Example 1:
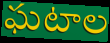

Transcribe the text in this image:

ఘటాల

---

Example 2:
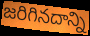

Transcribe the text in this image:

జరిగినదాన్ని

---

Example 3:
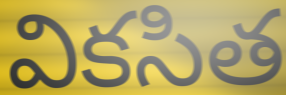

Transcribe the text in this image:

వికసిత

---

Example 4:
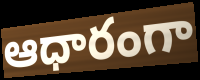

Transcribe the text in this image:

ఆధారంగా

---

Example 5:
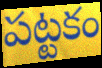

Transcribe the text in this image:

పట్టకం